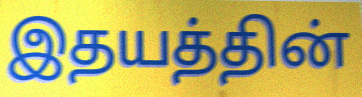
இதயத்தின்